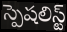
స్పెషలిస్ట్